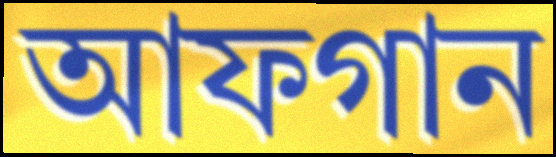
আফগান